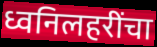
ध्वनिलहरींचा